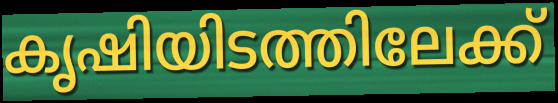
കൃഷിയിടത്തിലേക്ക്